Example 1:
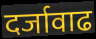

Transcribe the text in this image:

दर्जावाढ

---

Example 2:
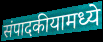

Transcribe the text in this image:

संपादकीयामध्ये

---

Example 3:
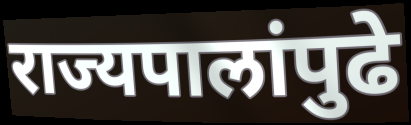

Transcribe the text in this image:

राज्यपालांपुढे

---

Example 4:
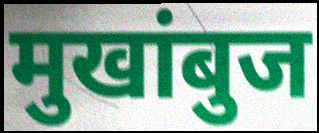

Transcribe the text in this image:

मुखांबुज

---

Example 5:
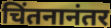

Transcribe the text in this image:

चिंतनानंतर